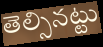
తెల్సినట్టు